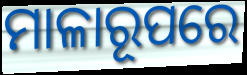
ମାଳାରୂପରେ